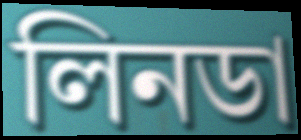
লিনডা